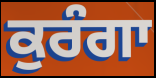
ਕੁਰੰਗਾ